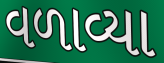
વળાવ્યા